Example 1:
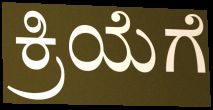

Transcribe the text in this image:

ಕ್ರಿಯೆಗೆ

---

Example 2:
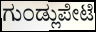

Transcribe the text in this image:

ಗುಂಡ್ಲುಪೇಟೆ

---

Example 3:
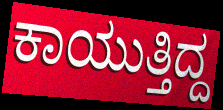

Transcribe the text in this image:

ಕಾಯುತ್ತಿದ್ದ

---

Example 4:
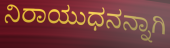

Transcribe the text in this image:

ನಿರಾಯುಧನನ್ನಾಗಿ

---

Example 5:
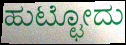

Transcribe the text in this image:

ಹುಟ್ಟೋದು